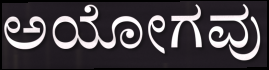
ಅಯೋಗವು